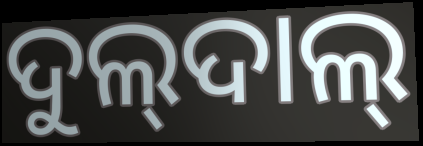
ଦୁଲ୍‍ଦାଲ୍